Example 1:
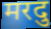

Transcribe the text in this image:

मरदु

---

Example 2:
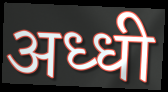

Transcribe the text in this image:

अध्धी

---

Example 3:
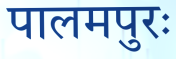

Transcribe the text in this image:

पालमपुरः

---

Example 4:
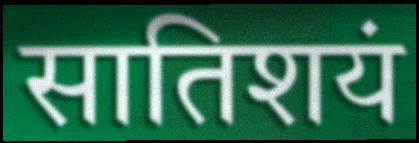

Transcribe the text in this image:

सातिशयं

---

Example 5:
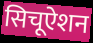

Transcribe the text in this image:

सिचूऐशन